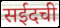
सईदची